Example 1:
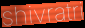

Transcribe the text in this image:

shivratri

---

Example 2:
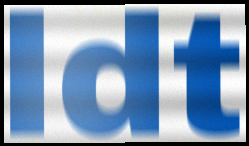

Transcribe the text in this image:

ldt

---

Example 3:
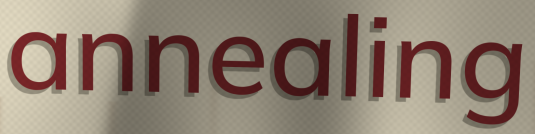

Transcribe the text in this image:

annealing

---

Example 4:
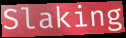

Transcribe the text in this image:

Slaking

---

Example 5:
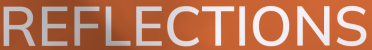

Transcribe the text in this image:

REFLECTIONS